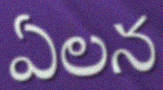
ఏలన